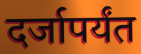
दर्जापर्यंत